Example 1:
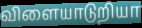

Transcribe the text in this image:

விளையாடுறியா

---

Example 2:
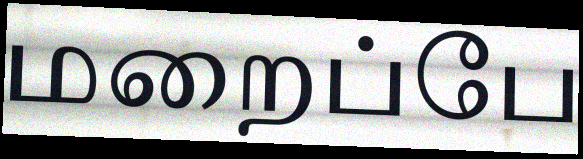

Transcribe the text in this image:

மறைப்பே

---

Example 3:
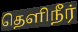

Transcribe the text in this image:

தெளிநீர்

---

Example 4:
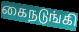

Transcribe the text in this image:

கைநடுங்கி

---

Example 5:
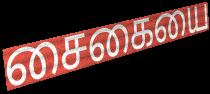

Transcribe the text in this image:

சைகையை